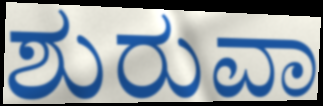
ಶುರುವಾ